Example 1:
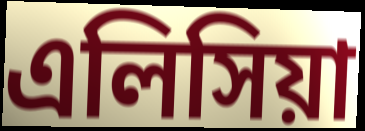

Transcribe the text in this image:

এলিসিয়া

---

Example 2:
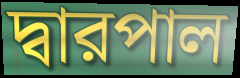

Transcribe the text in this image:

দ্বারপাল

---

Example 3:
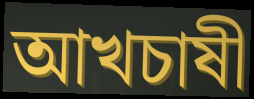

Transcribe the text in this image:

আখচাষী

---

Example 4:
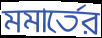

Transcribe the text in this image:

মমার্তের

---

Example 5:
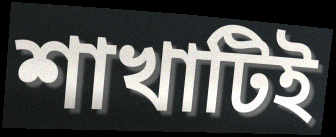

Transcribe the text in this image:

শাখাটিই